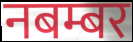
नबम्बर